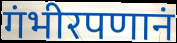
गंभीरपणानं